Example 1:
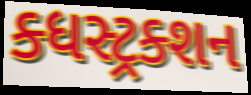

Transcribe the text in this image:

ક્ધસ્ટ્રક્શન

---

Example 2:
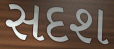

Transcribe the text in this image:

સદશ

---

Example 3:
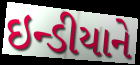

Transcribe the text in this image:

ઇન્ડીયાને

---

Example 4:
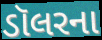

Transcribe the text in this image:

ડૉલરના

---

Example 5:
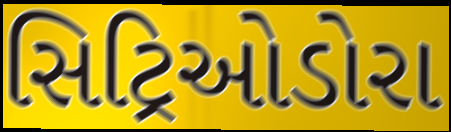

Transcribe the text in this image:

સિટ્રિઓડોરા